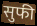
सुफी